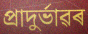
প্ৰাদুৰ্ভাৱৰ